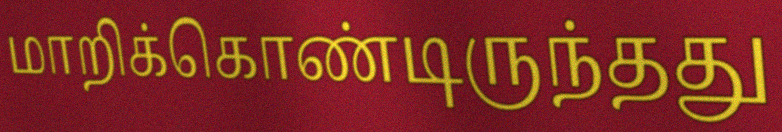
மாறிக்கொண்டிருந்தது